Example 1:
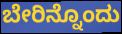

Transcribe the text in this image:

ಬೇರಿನ್ನೊಂದು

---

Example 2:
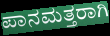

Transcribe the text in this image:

ಪಾನಮತ್ತರಾಗಿ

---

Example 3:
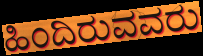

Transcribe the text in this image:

ಹಿಂದಿರುವವರು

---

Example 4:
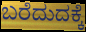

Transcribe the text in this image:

ಬರೆದುದಕ್ಕೆ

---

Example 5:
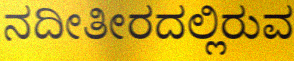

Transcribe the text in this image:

ನದೀತೀರದಲ್ಲಿರುವ